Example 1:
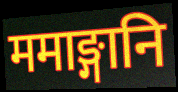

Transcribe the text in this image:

ममाङ्गानि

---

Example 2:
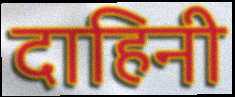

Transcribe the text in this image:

दाहिनी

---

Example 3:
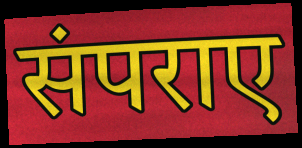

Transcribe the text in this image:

संपराए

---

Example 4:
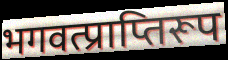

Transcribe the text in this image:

भगवत्प्राप्तिरूप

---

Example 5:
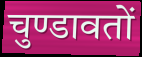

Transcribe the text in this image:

चुण्डावतों